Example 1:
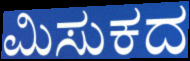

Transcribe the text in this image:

ಮಿಸುಕದ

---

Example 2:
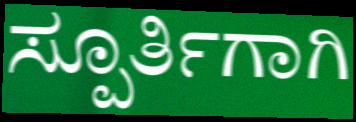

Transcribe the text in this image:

ಸ್ಪೂರ್ತಿಗಾಗಿ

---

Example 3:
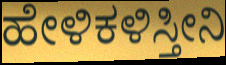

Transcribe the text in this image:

ಹೇಳಿಕಳಿಸ್ತೀನಿ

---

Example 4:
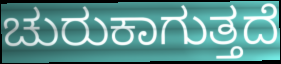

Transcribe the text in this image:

ಚುರುಕಾಗುತ್ತದೆ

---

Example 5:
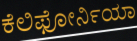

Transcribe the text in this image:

ಕೆಲಿಫೋರ್ನಿಯಾ